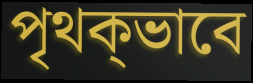
পৃথক্ভাবে